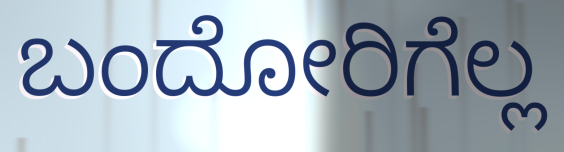
ಬಂದೋರಿಗೆಲ್ಲ